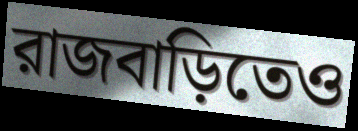
রাজবাড়িতেও